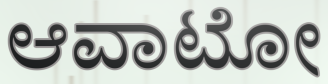
ಆವಾಟೋ